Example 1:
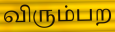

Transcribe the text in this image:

விரும்பற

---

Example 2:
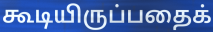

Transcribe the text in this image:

கூடியிருப்பதைக்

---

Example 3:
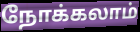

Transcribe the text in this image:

நோக்கலாம்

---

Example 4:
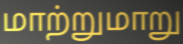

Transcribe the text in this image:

மாற்றுமாறு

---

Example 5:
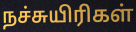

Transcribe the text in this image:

நச்சுயிரிகள்